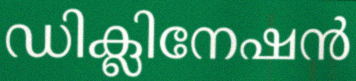
ഡിക്ലിനേഷൻ